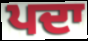
ਪਦਾ